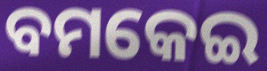
ବମକେଇ